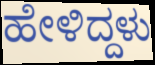
ಹೇಳಿದ್ದಳು